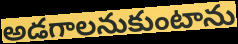
అడగాలనుకుంటాను